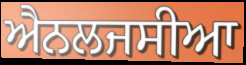
ਐਨਲਜਸੀਆ